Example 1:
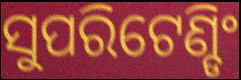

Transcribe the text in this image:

ସୁପରିଟେଣ୍ଡିଂ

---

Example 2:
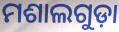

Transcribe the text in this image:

ମଶାଲଗୁଡ଼ା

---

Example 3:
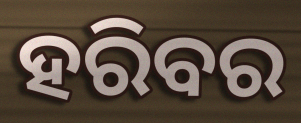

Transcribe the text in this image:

ହରିବର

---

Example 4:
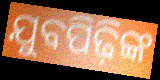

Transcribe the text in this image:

ଯୁବପିଢ଼ିଙ୍କ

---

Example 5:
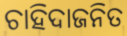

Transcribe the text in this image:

ଚାହିଦାଜନିତ